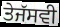
ਤੇਜੱਸਵੀ